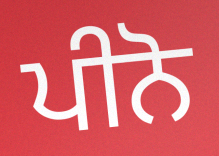
ਪੀਨੋ